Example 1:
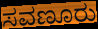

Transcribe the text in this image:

ಸವಣೂರು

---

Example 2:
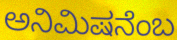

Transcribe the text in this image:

ಅನಿಮಿಷನೆಂಬ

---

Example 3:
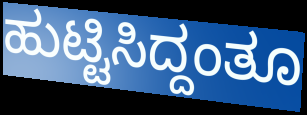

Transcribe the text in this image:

ಹುಟ್ಟಿಸಿದ್ದಂತೂ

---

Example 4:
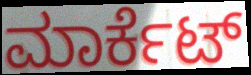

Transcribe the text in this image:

ಮಾರ್ಕೆಟ್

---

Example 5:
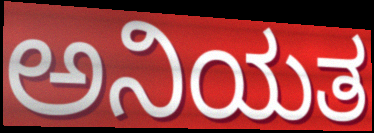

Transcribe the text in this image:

ಅನಿಯತ